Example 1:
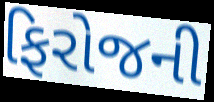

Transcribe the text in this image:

ફિરોજની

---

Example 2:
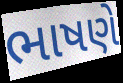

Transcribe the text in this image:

ભાષણે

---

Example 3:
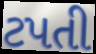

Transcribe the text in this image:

ટપતી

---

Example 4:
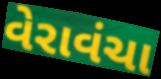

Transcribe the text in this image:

વેરાવંચા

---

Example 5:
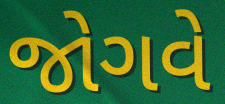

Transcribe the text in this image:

જોગવે